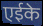
एईके